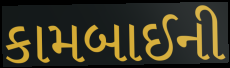
કામબાઈની